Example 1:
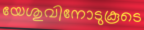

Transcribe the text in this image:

യേശുവിനോടുകൂടെ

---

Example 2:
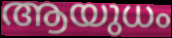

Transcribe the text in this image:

ആയുധം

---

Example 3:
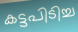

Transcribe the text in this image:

കട്ടപിടിച്ച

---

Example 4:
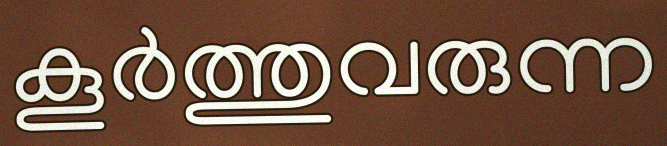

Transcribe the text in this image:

കൂർത്തുവരുന്ന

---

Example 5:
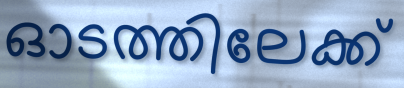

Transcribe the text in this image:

ഓടത്തിലേക്ക്